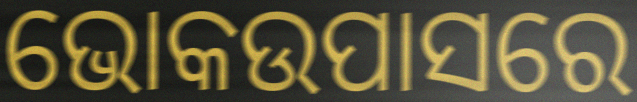
ଭୋକଉପାସରେ